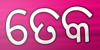
ତେକ